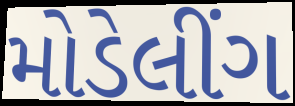
મોડેલીંગ